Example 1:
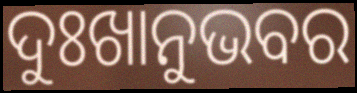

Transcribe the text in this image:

ଦୁଃଖାନୁଭବର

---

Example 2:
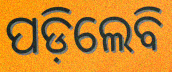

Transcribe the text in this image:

ପଡ଼ିଲେବି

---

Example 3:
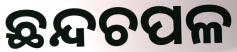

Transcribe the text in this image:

ଛନ୍ଦଚପଳ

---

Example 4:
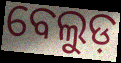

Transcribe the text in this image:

ବେଲୁଡ଼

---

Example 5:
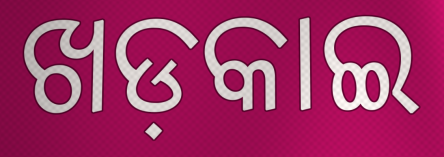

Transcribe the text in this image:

ଖଡ଼କାଇ